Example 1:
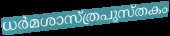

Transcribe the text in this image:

ധർമശാസ്ത്രപുസ്തകം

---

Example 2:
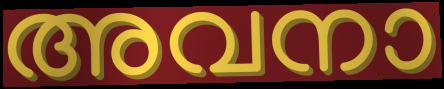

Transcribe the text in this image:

അവനാ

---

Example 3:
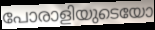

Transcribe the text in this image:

പോരാളിയുടെയോ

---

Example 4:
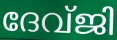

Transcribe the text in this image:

ദേവ്ജി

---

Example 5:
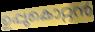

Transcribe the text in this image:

ഉപ്പുകൊറ്റൻ